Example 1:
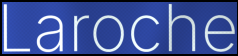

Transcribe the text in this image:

Laroche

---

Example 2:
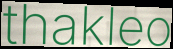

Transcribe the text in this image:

thakleo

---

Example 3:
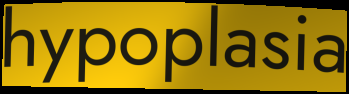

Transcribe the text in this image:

hypoplasia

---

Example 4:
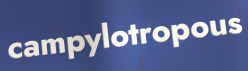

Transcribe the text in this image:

campylotropous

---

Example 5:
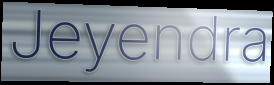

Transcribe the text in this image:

Jeyendra